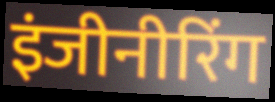
इंजीनीरिंग